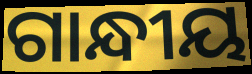
ଗାନ୍ଧୀୟ